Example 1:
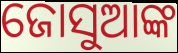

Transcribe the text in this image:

ଜୋସୁଆଙ୍କ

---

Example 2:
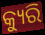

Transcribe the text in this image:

କ୍ୟୁରି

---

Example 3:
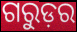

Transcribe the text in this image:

ଗରୁଡ଼ର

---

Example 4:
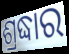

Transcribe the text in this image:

ଶ୍ରଦ୍ଧାର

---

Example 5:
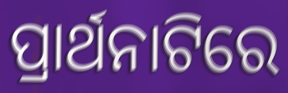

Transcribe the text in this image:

ପ୍ରାର୍ଥନାଟିରେ